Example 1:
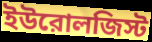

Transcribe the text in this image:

ইউরোলজিস্ট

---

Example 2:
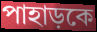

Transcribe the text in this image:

পাহাড়কে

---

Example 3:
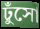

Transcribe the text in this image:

ঢুঁসো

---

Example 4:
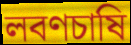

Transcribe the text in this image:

লবণচাষি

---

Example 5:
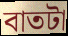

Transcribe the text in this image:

বাতটা